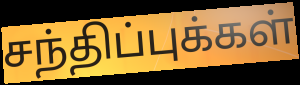
சந்திப்புக்கள்